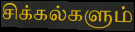
சிக்கல்களும்